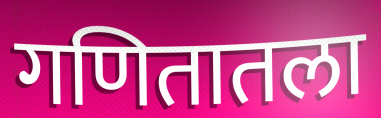
गणितातला